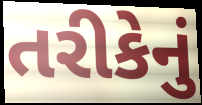
તરીકેનું